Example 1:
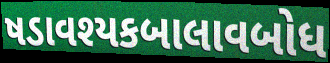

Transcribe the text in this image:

ષડાવશ્યકબાલાવબોધ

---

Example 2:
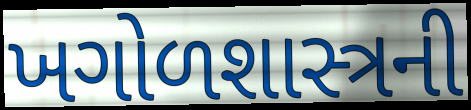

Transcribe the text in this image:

ખગોળશાસ્ત્રની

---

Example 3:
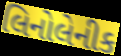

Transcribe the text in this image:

લિનોલેનીક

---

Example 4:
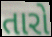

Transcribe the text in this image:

તારો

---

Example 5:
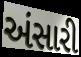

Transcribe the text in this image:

અંસારી